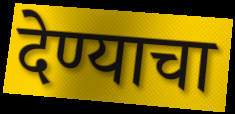
देण्याचा